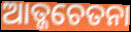
ଆତ୍ଜଚେତନା